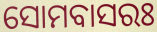
ସୋମବାସରଃ